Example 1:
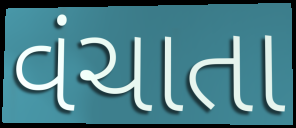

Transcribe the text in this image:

વંચાતા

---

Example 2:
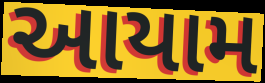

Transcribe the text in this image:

આયામ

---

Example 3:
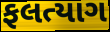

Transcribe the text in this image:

ફલત્યાગ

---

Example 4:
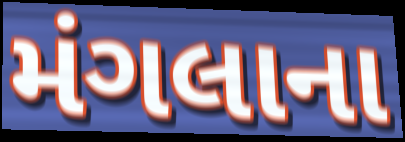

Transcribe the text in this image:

મંગલાના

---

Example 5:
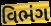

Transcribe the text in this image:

વિભંગ